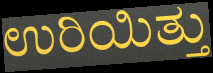
ಉರಿಯಿತ್ತು